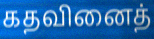
கதவினைத்